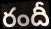
రందీ